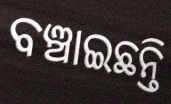
ବଞ୍ଚାଇଛନ୍ତି